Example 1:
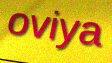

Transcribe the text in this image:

oviya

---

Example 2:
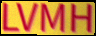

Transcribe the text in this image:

LVMH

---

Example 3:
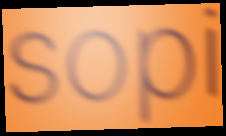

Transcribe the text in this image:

sopi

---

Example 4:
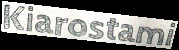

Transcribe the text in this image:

Kiarostami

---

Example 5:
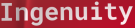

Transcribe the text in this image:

Ingenuity